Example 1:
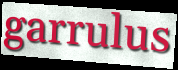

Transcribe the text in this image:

garrulus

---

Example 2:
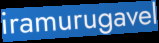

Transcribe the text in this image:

iramurugavel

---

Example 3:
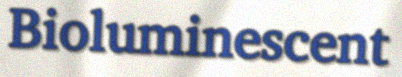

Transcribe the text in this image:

Bioluminescent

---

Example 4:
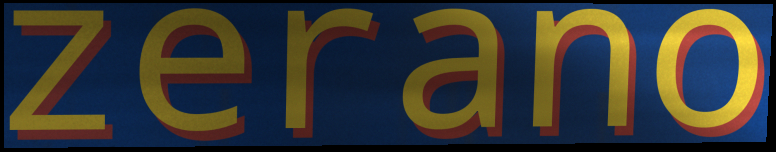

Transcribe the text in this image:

zerano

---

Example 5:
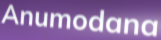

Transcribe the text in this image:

Anumodana